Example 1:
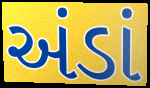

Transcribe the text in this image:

અંડાં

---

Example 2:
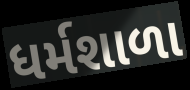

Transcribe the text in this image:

ધર્મશાળા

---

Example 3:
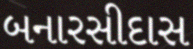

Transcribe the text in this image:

બનારસીદાસ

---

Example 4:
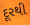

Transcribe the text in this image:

દૂરથી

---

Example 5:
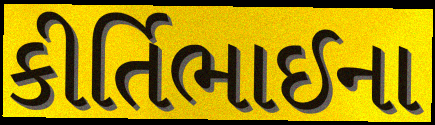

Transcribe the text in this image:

કીર્તિભાઈના